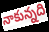
నాకున్నది